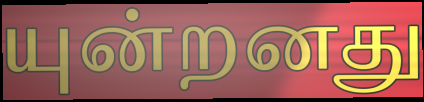
யுன்றனது